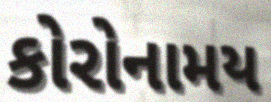
કોરોનામય